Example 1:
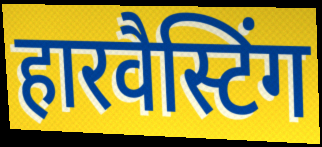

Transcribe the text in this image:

हारवैस्टिंग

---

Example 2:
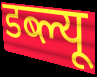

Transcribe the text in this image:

डब्ल्यू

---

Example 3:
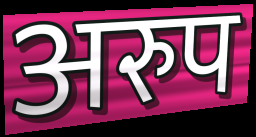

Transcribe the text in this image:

अरुप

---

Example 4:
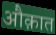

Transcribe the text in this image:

औक़ात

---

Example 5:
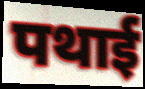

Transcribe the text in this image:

पथाई